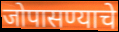
जोपासण्याचे